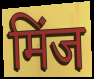
मिंज